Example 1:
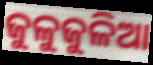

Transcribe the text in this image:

ଜୁଳୁଜୁଳିଆ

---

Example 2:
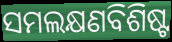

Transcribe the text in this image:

ସମଲକ୍ଷଣବିଶିଷ୍ଟ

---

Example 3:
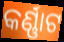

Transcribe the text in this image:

କର୍ଣ୍ଣାଟ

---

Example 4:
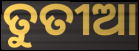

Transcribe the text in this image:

ତୁତୀଆ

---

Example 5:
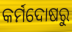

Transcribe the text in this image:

କର୍ମଦୋଷରୁ